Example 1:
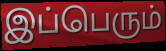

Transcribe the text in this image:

இப்பெரும்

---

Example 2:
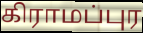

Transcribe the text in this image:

கிராமப்புர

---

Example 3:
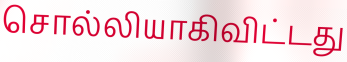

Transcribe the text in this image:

சொல்லியாகிவிட்டது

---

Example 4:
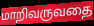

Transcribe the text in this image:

மாறிவருவதை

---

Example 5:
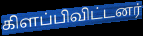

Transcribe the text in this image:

கிளப்பிவிட்டனர்